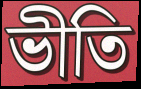
ভীতি